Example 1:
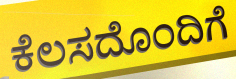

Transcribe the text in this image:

ಕೆಲಸದೊಂದಿಗೆ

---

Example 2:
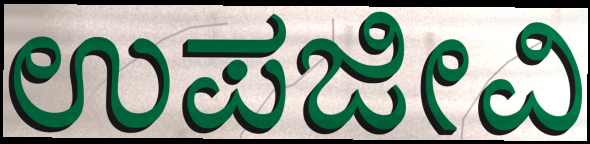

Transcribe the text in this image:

ಉಪಜೀವಿ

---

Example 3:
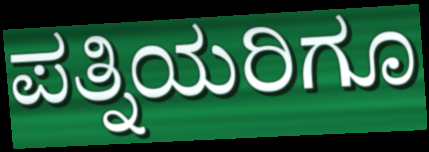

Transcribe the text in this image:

ಪತ್ನಿಯರಿಗೂ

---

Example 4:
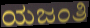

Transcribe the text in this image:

ಯಜಂತಿ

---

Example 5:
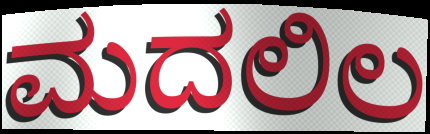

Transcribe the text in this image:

ಮದಲಿಲ